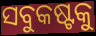
ସବୁକଷ୍ଟକୁ